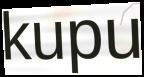
kupu